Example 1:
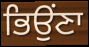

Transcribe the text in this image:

ਭਿਉਂਣਾ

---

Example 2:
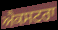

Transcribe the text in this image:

ਐਕਸਟਰਾ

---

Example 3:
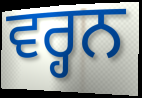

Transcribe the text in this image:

ਵਰ੍ਹਨ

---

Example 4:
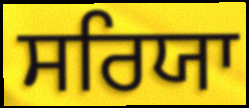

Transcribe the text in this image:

ਸਰਿਯਾ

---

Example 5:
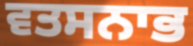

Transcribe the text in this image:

ਵਤਸਨਾਭ